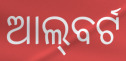
ଆଲ୍‌ବର୍ଟ